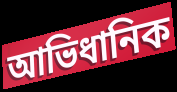
আভিধানিক